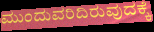
ಮುಂದುವರಿದಿರುವುದಕ್ಕೆ